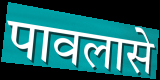
पावलासे